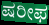
ಷರೀಫ